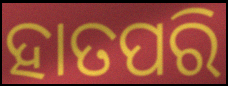
ହାତପରି